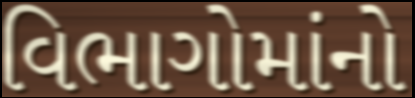
વિભાગોમાંનો